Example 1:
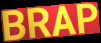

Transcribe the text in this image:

BRAP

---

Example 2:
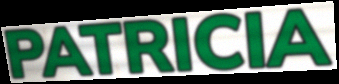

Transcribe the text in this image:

PATRICIA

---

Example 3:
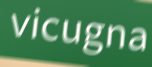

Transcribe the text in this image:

vicugna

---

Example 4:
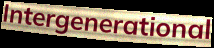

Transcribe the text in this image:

Intergenerational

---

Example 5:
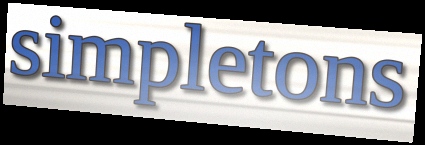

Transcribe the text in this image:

simpletons